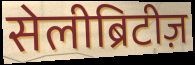
सेलीब्रिटीज़